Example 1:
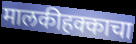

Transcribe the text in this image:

मालकीहक्काचा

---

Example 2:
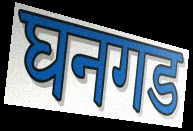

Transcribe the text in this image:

घनगड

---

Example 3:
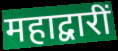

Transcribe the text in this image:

महाद्वारीं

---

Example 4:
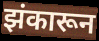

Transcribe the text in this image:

झंकारून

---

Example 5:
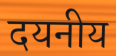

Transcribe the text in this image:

दयनीय